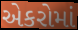
એકરોમાં